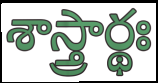
శాస్త్రార్థః